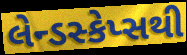
લેન્ડસ્કેપ્સથી